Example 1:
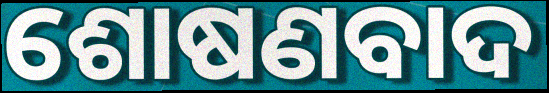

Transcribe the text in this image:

ଶୋଷଣବାଦ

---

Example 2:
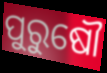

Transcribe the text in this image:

ପୁରୁଷୌ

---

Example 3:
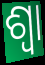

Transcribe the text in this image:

ଶ୍ୱା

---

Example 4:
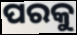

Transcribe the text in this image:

ପରକୁ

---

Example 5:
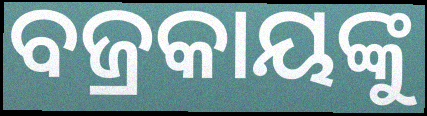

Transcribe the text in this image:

ବଜ୍ରକାୟଙ୍କୁ